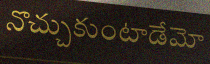
నొచ్చుకుంటాడేమో